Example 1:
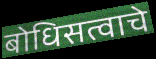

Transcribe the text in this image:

बोधिसत्वाचे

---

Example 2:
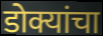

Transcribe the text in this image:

डोक्यांचा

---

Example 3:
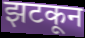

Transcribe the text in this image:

झटकून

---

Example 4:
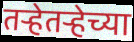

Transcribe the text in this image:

तर्‍हेतर्‍हेच्या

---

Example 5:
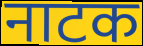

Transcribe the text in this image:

नाटक